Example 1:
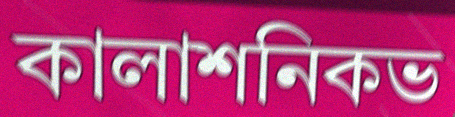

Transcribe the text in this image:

কালাশনিকভ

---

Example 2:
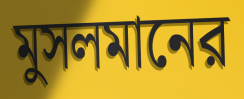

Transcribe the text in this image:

মুসলমানের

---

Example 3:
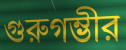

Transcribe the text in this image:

গুরুগম্ভীর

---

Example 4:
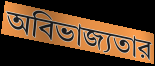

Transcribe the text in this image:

অবিভাজ্যতার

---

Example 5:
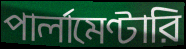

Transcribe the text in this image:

পার্লামেণ্টারি